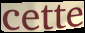
cette